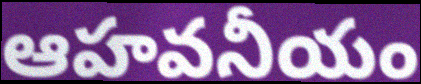
ఆహవనీయం